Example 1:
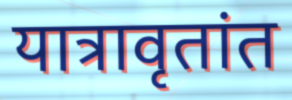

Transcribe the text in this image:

यात्रावृतांत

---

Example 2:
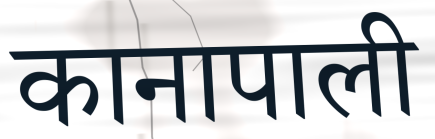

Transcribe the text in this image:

कानापाली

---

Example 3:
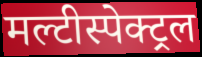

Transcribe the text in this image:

मल्टीस्पेक्ट्रल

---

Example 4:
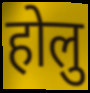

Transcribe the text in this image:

होलु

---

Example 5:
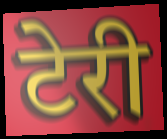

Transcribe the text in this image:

टेरी